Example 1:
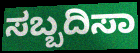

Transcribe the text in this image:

ಸಬ್ಬದಿಸಾ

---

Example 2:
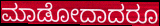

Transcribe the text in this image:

ಮಾಡೋದಾದರೂ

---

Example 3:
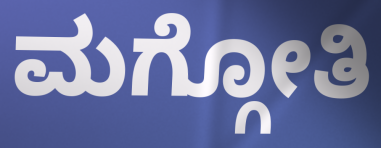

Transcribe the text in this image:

ಮಗ್ಗೋತಿ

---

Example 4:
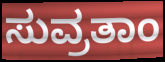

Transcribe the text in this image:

ಸುವ್ರತಾಂ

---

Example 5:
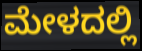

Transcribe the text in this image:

ಮೇಳದಲ್ಲಿ